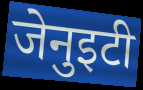
जेनुइटी